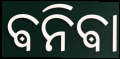
ଵନିଵା